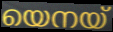
യെനയ്